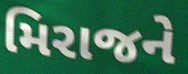
મિરાજને